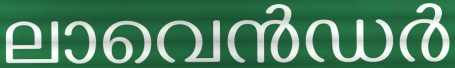
ലാവെൻഡർ